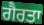
ਗੈਰਤਾ